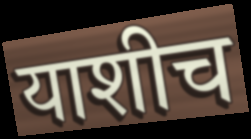
याशीच